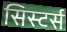
सिस्टर्स